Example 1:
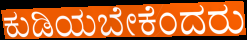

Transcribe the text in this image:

ಕುಡಿಯಬೇಕೆಂದರು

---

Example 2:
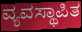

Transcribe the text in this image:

ವ್ಯವಸ್ಥಾಪಿತ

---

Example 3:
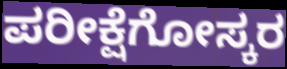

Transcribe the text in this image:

ಪರೀಕ್ಷೆಗೋಸ್ಕರ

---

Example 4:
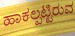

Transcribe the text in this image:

ಹಾಕಲ್ಪಟ್ಟಿರುವ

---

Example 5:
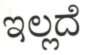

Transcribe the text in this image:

ಇಲ್ಲದೆ